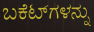
ಬಕೆಟ್‌ಗಳನ್ನು